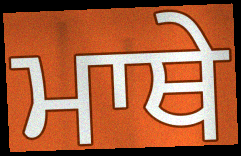
ਮਾਥੇ